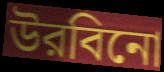
উরবিনো